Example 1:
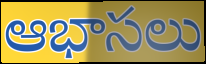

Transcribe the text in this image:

ఆభాసలు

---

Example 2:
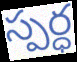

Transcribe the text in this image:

స్పర్ధ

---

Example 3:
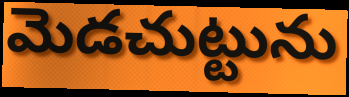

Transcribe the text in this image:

మెడచుట్టును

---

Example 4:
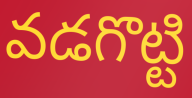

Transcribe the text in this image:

వడగొట్టి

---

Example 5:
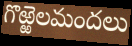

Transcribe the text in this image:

గొఱ్ఱెలమందలు